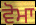
ਵੋਮਾ